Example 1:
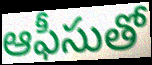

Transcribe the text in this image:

ఆఫీసుతో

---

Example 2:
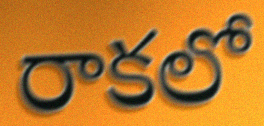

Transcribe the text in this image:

రాకలో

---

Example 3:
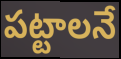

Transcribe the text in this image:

పట్టాలనే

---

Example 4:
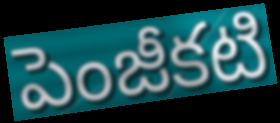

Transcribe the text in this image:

పెంజీకటి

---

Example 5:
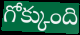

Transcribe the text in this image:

గోక్కుంది